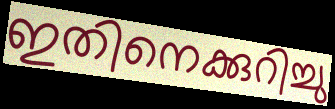
ഇതിനെക്കുറിച്ചു